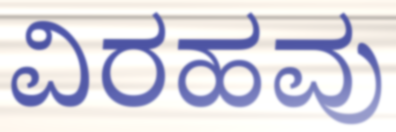
ವಿರಹವು